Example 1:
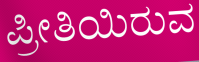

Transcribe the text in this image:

ಪ್ರೀತಿಯಿರುವ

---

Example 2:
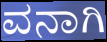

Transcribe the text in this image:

ವನಾಗಿ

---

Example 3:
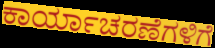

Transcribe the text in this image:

ಕಾರ್ಯಾಚರಣೆಗಳಿಗೆ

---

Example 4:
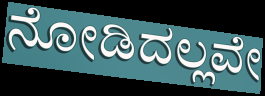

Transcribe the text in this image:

ನೋಡಿದಲ್ಲವೇ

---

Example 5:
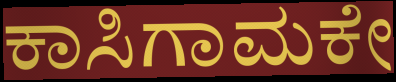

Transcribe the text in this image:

ಕಾಸಿಗಾಮಕೇ